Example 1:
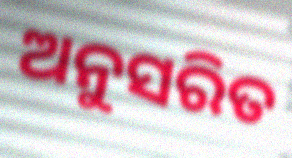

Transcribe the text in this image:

ଅନୁସରିତ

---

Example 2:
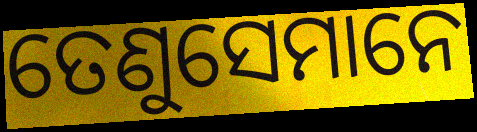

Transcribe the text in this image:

ତେଣୁସେମାନେ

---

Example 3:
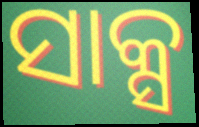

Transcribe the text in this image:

ସାକ୍ସ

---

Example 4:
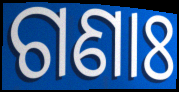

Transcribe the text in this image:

ଗଣାଃ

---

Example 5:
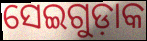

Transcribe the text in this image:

ସେଇଗୁଡ଼ାକ